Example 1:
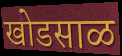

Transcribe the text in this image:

खोडसाळ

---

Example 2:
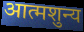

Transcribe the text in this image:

आत्मशुन्य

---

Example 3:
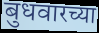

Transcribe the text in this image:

बुधवारच्या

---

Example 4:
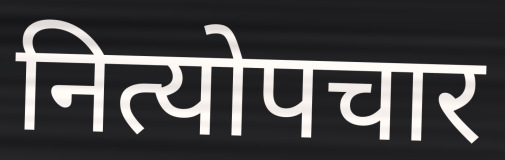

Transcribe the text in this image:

नित्योपचार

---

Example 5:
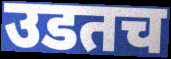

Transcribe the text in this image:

उडतच